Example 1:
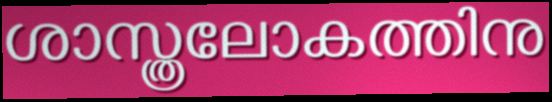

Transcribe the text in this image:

ശാസ്ത്രലോകത്തിനു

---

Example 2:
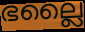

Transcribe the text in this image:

ഭല്ലൈ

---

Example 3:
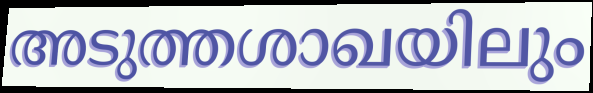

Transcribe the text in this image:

അടുത്തശാഖയിലും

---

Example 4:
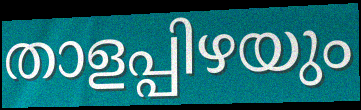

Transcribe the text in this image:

താളപ്പിഴയും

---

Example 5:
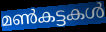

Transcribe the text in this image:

മൺകട്ടകൾ